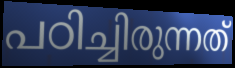
പഠിച്ചിരുന്നത്